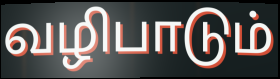
வழிபாடும்